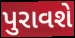
પુરાવશે